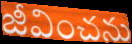
జీవించను